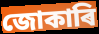
জোকাৰি